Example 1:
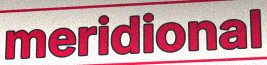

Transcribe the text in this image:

meridional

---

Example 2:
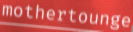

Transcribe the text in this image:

mothertounge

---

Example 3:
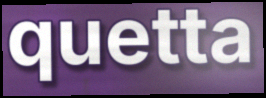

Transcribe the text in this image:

quetta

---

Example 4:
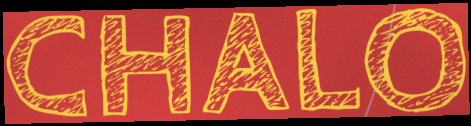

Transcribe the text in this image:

CHALO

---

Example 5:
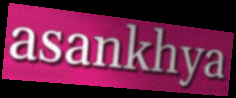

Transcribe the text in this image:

asankhya